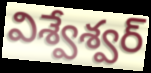
విశ్వేశ్వర్